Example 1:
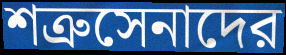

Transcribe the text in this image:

শত্রুসেনাদের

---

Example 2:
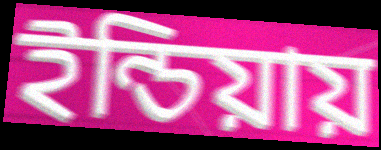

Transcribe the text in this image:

ইন্ডিয়ায়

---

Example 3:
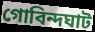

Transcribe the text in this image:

গোবিন্দঘাট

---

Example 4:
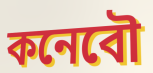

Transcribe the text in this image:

কনেবৌ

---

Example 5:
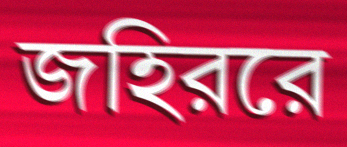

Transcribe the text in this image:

জহিররে